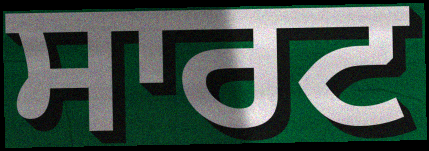
ਸਾਰਟ